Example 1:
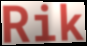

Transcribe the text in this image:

Rik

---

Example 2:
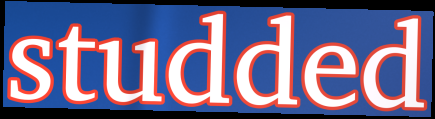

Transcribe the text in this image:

studded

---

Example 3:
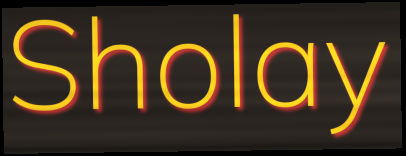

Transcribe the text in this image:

Sholay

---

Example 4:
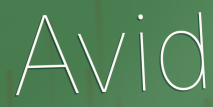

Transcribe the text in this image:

Avid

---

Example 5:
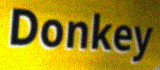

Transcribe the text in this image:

Donkey